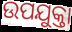
ଉପଯୁକ୍ତା